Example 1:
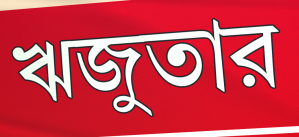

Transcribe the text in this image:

ঋজুতার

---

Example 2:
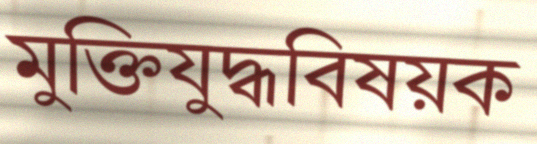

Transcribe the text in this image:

মুক্তিযুদ্ধবিষয়ক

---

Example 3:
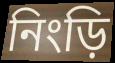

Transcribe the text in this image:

নিংড়ি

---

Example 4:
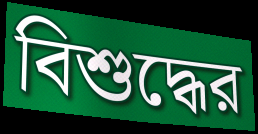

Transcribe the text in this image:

বিশুদ্ধের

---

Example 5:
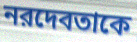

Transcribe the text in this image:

নরদেবতাকে